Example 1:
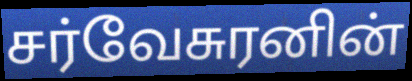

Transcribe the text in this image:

சர்வேசுரனின்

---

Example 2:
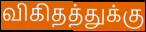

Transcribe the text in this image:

விகிதத்துக்கு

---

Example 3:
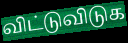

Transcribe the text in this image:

விட்டுவிடுக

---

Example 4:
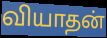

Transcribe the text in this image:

வியாதன்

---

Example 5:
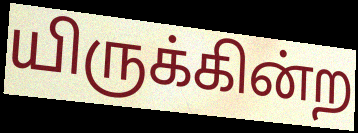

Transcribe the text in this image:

யிருக்கின்ற